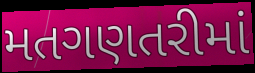
મતગણતરીમાં